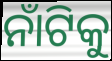
ନାଁଟିକୁ